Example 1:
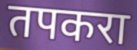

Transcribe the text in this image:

तपकरा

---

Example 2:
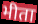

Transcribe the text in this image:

भीता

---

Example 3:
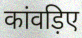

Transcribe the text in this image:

कांवड़िए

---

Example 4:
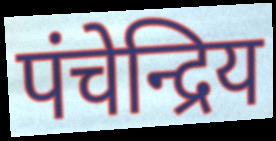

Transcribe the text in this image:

पंचेन्द्रिय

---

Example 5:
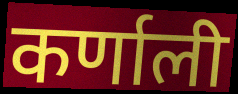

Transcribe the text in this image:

कर्णाली